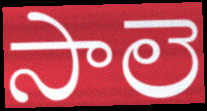
సాలె